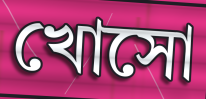
খোসো